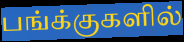
பங்க்குகளில்